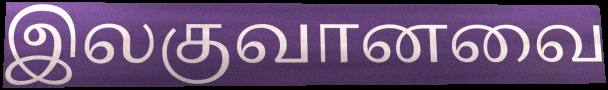
இலகுவானவை